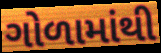
ગોળામાંથી